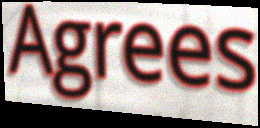
Agrees